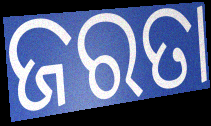
ଜରତା